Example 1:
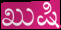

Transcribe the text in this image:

ಖುಷಿ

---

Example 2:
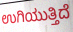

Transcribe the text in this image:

ಉಗಿಯುತ್ತಿದೆ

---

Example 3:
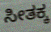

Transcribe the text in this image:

ಸೀತಕ್ಕ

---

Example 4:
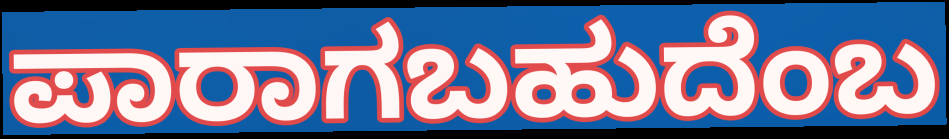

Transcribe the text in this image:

ಪಾರಾಗಬಹುದೆಂಬ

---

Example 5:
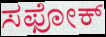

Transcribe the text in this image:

ಸಫೋಕ್